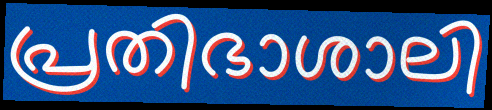
പ്രതിഭാശാലി